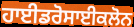
ਹਾਈਡਰੋਸਾਈਕਲੋਨ